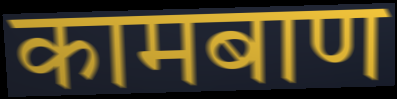
कामबाण